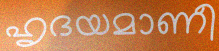
ഹൃദയമാണീ